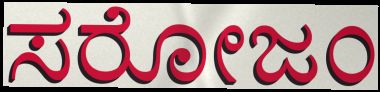
ಸರೋಜಂ